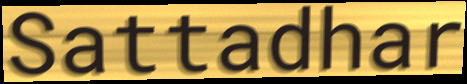
Sattadhar